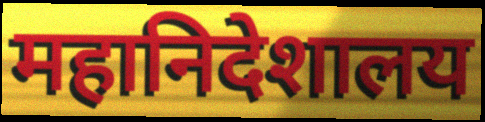
महानिदेशालय